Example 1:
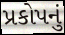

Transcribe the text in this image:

પ્રકોપનું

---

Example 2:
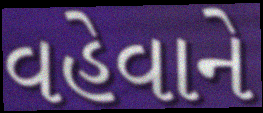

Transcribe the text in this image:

વહેવાને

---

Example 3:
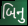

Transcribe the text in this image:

બિનુ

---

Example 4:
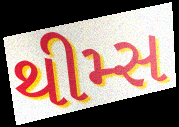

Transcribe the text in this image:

થીમ્સ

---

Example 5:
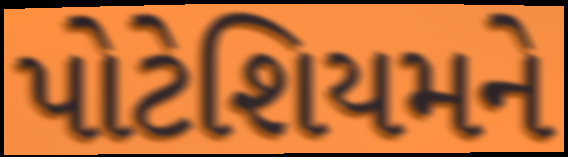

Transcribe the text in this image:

પોટેશિયમને